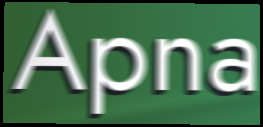
Apna